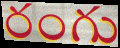
రంగు